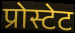
प्रोस्टेट